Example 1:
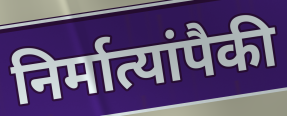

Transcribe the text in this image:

निर्मात्यांपैकी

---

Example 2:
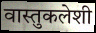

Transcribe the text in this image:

वास्तुकलेशी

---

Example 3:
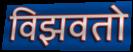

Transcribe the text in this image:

विझवतो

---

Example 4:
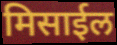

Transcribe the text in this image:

मिसाईल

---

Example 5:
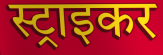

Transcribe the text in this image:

स्ट्राइकर